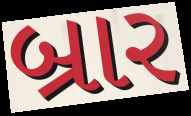
બ્રાર